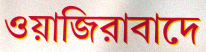
ওয়াজিরাবাদে